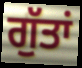
ਗੁੱਤਾਂ